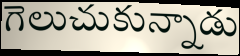
గెలుచుకున్నాడు